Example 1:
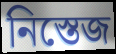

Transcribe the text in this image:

নিস্তেজ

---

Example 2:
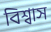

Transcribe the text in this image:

বিশ্বাস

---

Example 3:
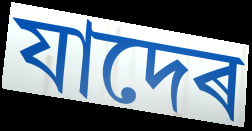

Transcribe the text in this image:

যাদেৰ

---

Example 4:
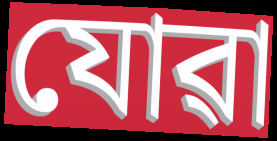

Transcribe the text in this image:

যোৱা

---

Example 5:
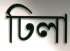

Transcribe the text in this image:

ঢিলা